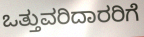
ಒತ್ತುವರಿದಾರರಿಗೆ